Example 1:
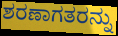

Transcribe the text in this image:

ಶರಣಾಗತರನ್ನು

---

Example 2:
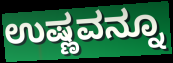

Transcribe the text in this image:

ಉಷ್ಣವನ್ನೂ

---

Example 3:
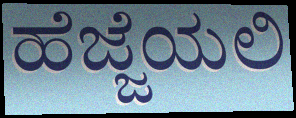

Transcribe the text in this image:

ಹೆಜ್ಜೆಯಲಿ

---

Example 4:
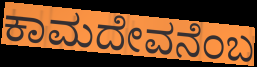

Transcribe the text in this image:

ಕಾಮದೇವನೆಂಬ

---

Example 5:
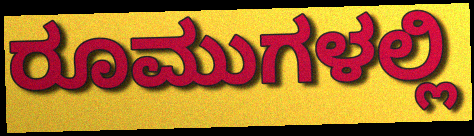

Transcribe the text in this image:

ರೂಮುಗಳಲ್ಲಿ